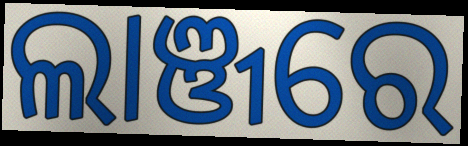
ଲାଞ୍ଜରେ